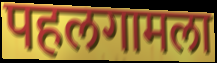
पहलगामला